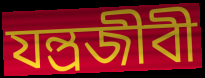
যন্ত্রজীবী